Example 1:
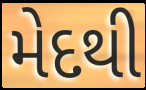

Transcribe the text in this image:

મેદથી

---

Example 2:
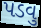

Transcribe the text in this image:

પડવુ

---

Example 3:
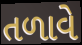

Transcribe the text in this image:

તળાવે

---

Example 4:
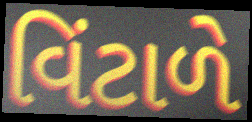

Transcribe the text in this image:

વિંટાળે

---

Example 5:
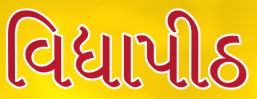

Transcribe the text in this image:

વિદ્યાપીઠ